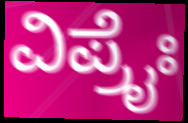
ವಿಪ್ರೈಃ